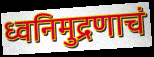
ध्वनिमुद्रणाचं